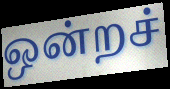
ஒன்றச்